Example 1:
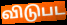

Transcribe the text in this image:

விடுபட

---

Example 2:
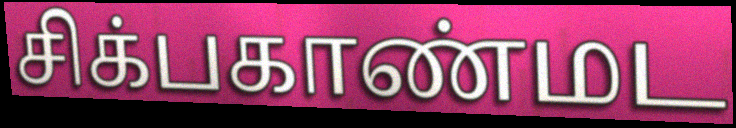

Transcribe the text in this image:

சிக்பகாண்மட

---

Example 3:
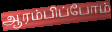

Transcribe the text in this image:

ஆரம்பிப்போம்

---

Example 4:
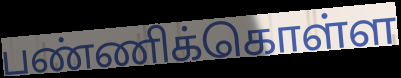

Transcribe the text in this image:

பண்ணிக்கொள்ள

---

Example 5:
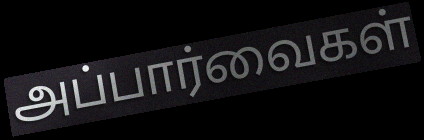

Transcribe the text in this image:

அப்பார்வைகள்